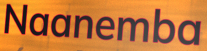
Naanemba